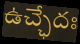
ఉచ్ఛేదః